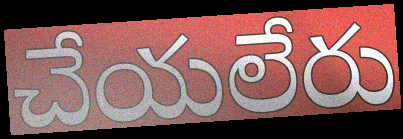
చేయలేరు